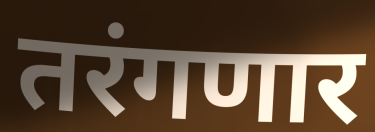
तरंगणार